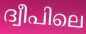
ദ്വീപിലെ